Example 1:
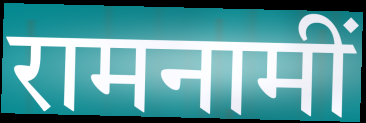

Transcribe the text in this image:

रामनामीं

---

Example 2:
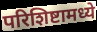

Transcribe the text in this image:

परिशिष्टामध्ये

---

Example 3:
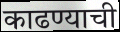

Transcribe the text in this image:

काढण्याची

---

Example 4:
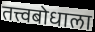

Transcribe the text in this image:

तत्त्वबोधाला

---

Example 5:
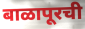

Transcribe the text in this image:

बाळापूरची